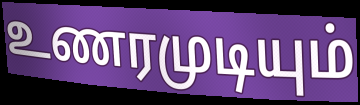
உணரமுடியும்